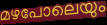
മഴപോലെയും